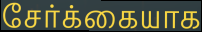
சேர்க்கையாக